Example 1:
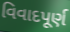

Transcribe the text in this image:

વિવાદપૂર્ણ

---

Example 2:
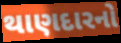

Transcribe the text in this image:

થાણદારનો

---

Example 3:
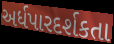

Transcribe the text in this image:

અર્ધપારદર્શકતા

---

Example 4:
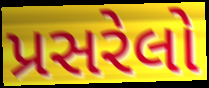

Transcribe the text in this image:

પ્રસરેલો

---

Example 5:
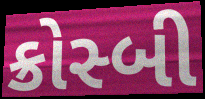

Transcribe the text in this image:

ક્રોસ્બી